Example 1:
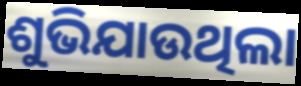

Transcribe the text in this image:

ଶୁଭିଯାଉଥିଲା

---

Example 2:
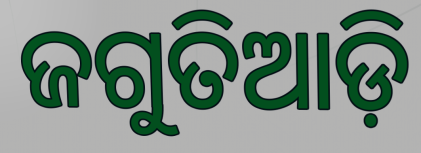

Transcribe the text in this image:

ଜଗୁତିଆଡ଼ି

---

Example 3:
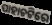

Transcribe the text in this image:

ପାହାଚଟିରେ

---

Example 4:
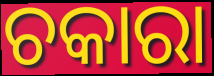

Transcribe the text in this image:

ଚକାରା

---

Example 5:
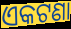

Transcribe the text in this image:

ଏକଟଣା